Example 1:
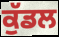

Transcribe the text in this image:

ਕੁੱਡਲ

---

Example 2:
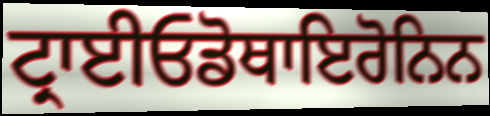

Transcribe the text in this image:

ਟ੍ਰਾਈਓਡੋਥਾਇਰੋਨਿਨ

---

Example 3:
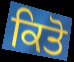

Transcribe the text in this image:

ਕਿਤੋ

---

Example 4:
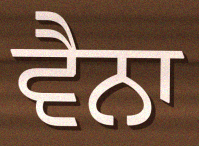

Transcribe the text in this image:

ਵੈਨਾ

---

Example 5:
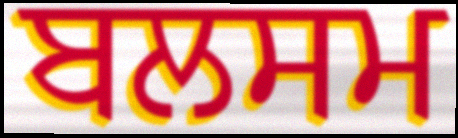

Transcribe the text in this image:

ਬਲਸਮ